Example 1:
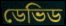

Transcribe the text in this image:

ডেভিড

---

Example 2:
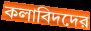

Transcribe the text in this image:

কলাবিদদের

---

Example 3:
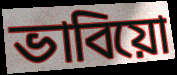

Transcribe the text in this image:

ভাবিয়ো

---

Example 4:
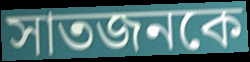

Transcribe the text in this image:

সাতজনকে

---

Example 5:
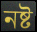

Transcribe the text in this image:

নষ্ট